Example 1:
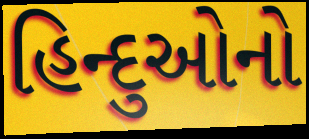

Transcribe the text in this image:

હિન્દુઓનો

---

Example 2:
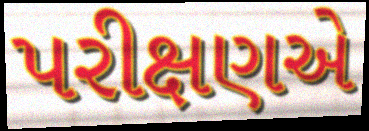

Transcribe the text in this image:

પરીક્ષણએ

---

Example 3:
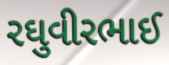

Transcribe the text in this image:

રઘુવીરભાઈ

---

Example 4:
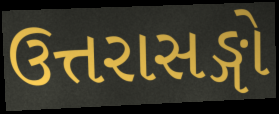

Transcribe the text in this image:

ઉત્તરાસઙ્ગો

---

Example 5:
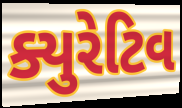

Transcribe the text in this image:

ક્યુરેટિવ